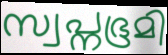
സ്വപ്നഭൂമി